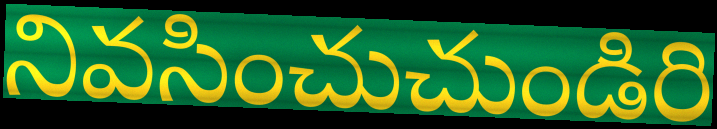
నివసించుచుండిరి